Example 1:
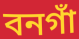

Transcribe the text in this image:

বনগাঁ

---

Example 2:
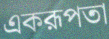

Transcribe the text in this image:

একরূপতা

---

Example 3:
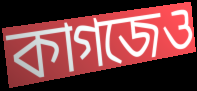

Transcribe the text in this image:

কাগজেও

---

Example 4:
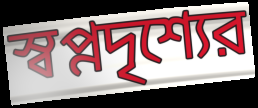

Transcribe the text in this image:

স্বপ্নদৃশ্যের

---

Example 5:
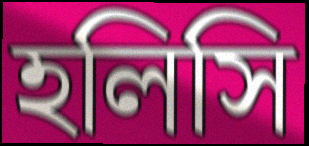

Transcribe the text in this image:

হলিসি